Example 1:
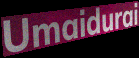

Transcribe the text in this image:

Umaidurai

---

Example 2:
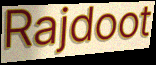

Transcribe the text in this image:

Rajdoot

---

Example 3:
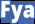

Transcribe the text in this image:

Fya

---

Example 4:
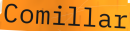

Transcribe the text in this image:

Comillar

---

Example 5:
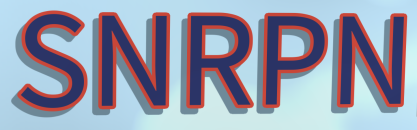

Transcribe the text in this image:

SNRPN